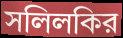
সলিলকির